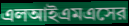
এলআইএমএসের